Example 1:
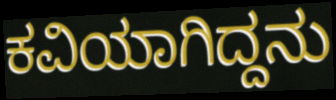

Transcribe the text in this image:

ಕವಿಯಾಗಿದ್ದನು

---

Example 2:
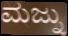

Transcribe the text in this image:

ಮಜ್ನು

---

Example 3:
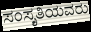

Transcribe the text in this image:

ಸಂಸ್ಕೃತಿಯವರು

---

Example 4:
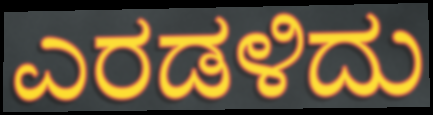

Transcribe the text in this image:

ಎರಡಳಿದು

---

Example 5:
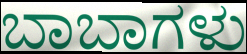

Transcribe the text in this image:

ಬಾಬಾಗಳು